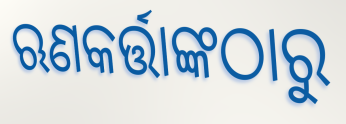
ଋଣକର୍ତ୍ତାଙ୍କଠାରୁ